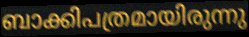
ബാക്കിപത്രമായിരുന്നു